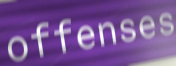
offenses